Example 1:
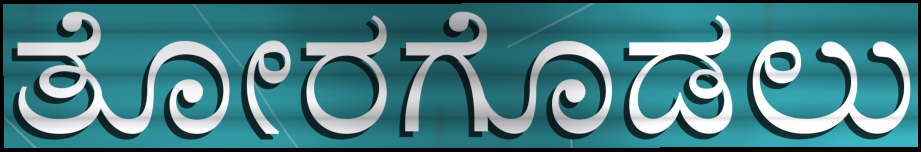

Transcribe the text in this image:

ತೋರಗೊಡಲು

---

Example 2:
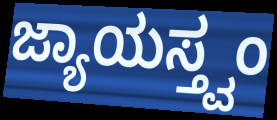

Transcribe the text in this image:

ಜ್ಯಾಯಸ್ತ್ವಂ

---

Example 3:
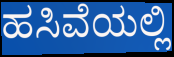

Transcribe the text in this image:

ಹಸಿವೆಯಲ್ಲಿ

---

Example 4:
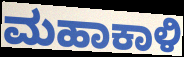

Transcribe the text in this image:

ಮಹಾಕಾಳಿ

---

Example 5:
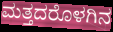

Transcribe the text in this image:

ಮತ್ತದರೊಳಗಿನ